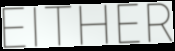
EITHER